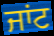
ਜਾਂਟ